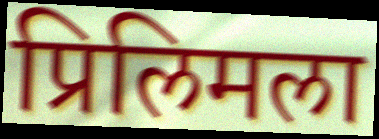
प्रिलिमला